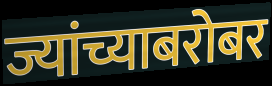
ज्यांच्याबरोबर